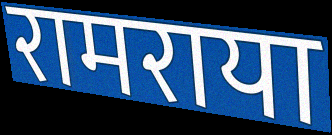
रामराया